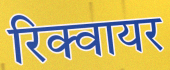
रिक्वायर